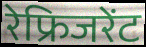
रेफ्रिजरेंट